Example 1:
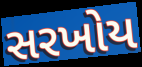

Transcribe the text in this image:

સરખોય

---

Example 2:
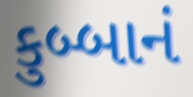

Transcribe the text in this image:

કુબ્બાનં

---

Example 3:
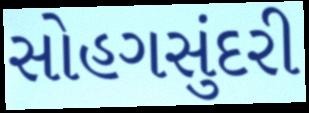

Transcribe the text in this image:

સોહગસુંદરી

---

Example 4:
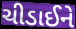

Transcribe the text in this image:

ચીડાઈને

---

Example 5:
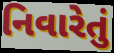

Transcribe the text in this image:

નિવારેતું